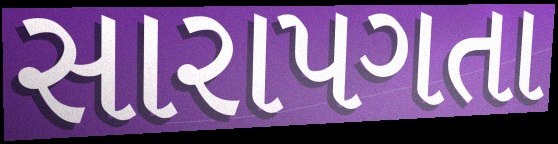
સારાપગતા